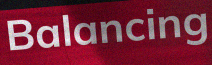
Balancing